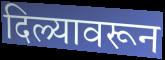
दिल्यावरून